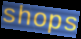
shops